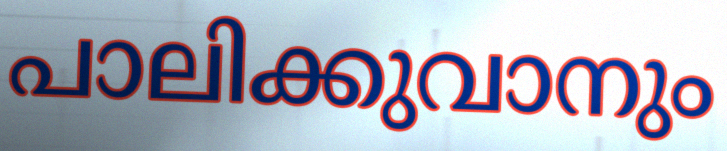
പാലിക്കുവാനും